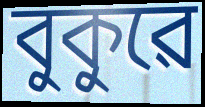
বুকুৱে